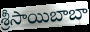
శ్రీసాయిబాబా